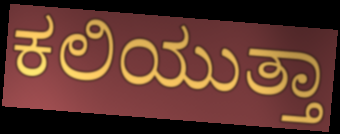
ಕಲಿಯುತ್ತಾ